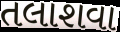
તલાશવા